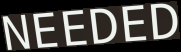
NEEDED